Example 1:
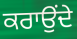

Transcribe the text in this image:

ਕਰਾਉੰਦੇ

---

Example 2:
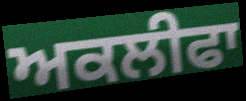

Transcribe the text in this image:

ਅਕਲੀਫਾ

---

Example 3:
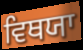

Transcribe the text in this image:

ਵਿਥਯਾ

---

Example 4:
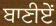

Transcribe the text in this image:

ਬਾਣੀਏਂ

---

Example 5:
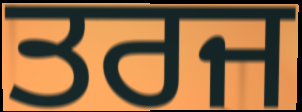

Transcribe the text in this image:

ਤਰਜ